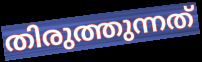
തിരുത്തുന്നത്